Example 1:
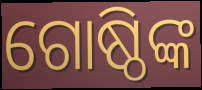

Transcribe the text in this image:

ଗୋଷ୍ଠିଙ୍କ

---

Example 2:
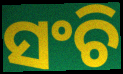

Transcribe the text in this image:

ସଂଚି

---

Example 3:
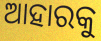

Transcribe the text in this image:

ଆହାରକୁ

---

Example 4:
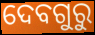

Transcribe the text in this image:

ଦେବଗୁରୁ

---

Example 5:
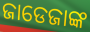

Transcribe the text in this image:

ଜାଡେଜାଙ୍କ